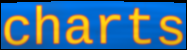
charts